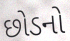
છોડનો